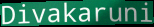
Divakaruni